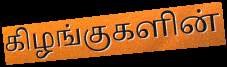
கிழங்குகளின்